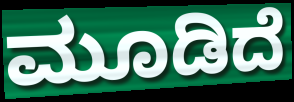
ಮೂಡಿದೆ